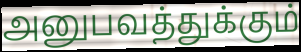
அனுபவத்துக்கும்